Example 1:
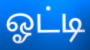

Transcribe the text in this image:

ஓட்டி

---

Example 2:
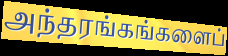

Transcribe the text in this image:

அந்தரங்கங்களைப்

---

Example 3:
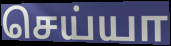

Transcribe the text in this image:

செய்யா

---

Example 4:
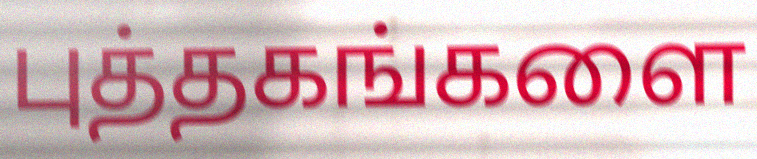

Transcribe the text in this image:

புத்தகங்களை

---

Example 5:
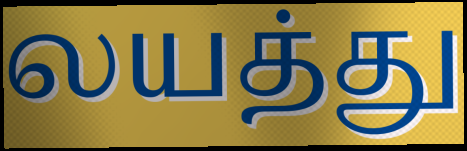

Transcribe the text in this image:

லயத்து